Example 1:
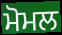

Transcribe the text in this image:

ਮੋਮਲ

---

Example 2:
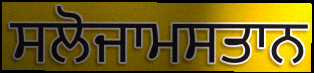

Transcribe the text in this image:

ਸਲੋਜਾਮਸਤਾਨ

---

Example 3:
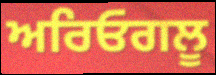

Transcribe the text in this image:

ਅਰਿਓਗਲੂ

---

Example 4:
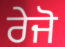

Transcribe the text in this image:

ਰੇਜੋ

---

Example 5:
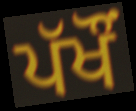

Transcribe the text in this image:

ਪੱਖੌਂ